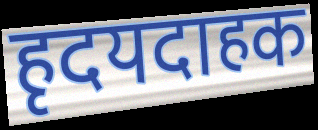
हृदयदाहक